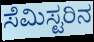
ಸೆಮಿಸ್ಟರಿನ